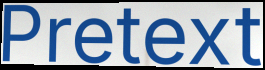
Pretext